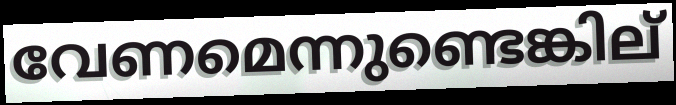
വേണമെന്നുണ്ടെങ്കില്